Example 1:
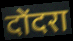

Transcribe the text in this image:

दोंदरा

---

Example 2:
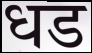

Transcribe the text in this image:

धड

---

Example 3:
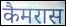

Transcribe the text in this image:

कैमरास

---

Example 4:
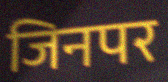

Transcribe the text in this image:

जिनपर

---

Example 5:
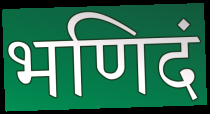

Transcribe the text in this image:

भणिदं